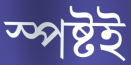
স্পষ্টই